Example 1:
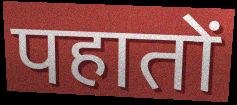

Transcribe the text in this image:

पहातों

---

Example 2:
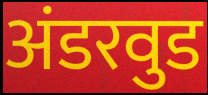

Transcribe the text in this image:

अंडरवुड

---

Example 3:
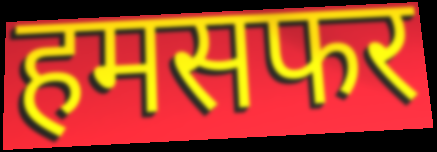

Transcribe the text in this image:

हमसफर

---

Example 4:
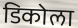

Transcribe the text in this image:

डिकोला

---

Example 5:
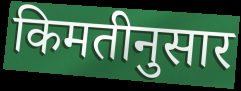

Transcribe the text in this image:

किमतीनुसार